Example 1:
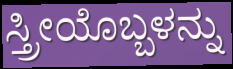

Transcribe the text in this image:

ಸ್ತ್ರೀಯೊಬ್ಬಳನ್ನು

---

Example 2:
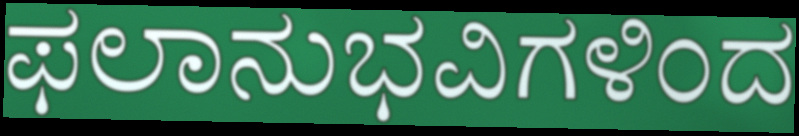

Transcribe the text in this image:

ಫಲಾನುಭವಿಗಳಿಂದ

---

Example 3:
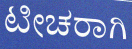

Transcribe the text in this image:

ಟೀಚರಾಗಿ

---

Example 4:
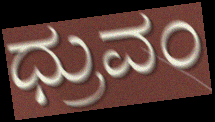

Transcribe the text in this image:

ಧ್ರುವಂ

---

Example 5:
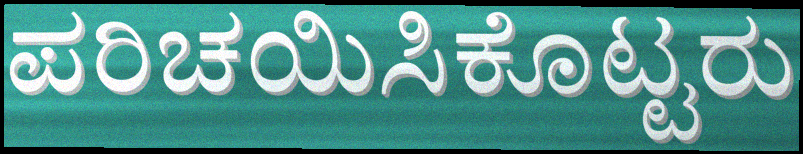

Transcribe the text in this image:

ಪರಿಚಯಿಸಿಕೊಟ್ಟರು